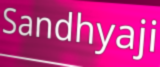
Sandhyaji